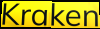
Kraken